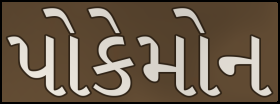
પોકેમોન